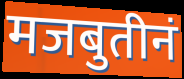
मजबुतीनं